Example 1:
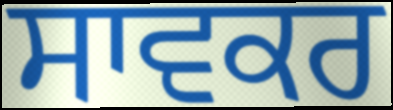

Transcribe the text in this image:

ਸਾਵਕਰ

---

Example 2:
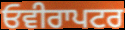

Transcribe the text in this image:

ਓਵੀਰਾਪਟਰ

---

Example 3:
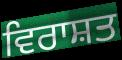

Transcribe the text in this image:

ਵਿਰਾਸ਼ਤ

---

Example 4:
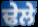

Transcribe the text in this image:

ਢੇਲੇ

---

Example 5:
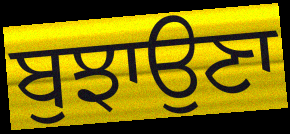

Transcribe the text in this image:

ਬੁਝਾਉਣਾ